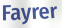
Fayrer